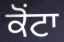
ਕੋਂਟਾ